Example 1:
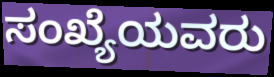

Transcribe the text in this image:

ಸಂಖ್ಯೆಯವರು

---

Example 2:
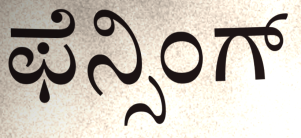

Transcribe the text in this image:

ಫೆನ್ಸಿಂಗ್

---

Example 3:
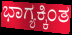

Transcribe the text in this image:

ಭಾಗ್ಯಕ್ಕಿಂತ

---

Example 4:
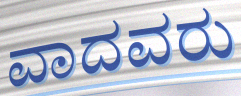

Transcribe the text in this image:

ವಾದವರು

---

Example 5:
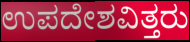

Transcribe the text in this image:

ಉಪದೇಶವಿತ್ತರು